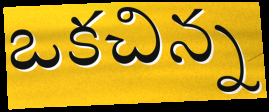
ఒకచిన్న